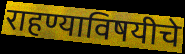
राहण्याविषयीचे